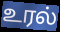
உரல்